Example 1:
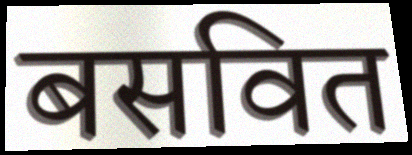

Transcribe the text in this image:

बसवित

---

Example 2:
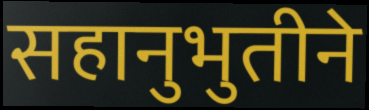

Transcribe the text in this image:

सहानुभुतीने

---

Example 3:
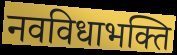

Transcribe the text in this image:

नवविधाभक्ति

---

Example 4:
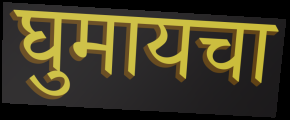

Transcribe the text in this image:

घुमायचा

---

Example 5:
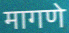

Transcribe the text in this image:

मागणे